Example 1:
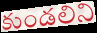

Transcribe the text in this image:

కుండలిని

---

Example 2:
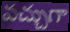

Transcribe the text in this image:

వచ్చుగా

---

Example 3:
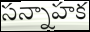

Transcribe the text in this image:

సన్నాహక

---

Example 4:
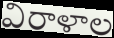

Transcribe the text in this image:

విరాళాల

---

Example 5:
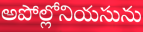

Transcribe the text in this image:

అపోల్లోనియసును